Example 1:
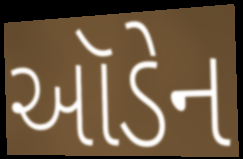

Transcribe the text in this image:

ઑડેન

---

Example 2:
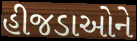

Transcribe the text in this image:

હીજડાઓને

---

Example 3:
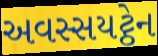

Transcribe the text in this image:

અવસ્સયટ્ઠેન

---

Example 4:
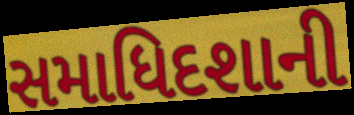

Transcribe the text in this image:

સમાધિદશાની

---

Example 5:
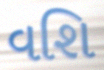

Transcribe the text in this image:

વશિ